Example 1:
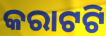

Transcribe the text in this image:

କରାଟଟି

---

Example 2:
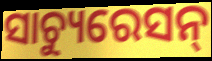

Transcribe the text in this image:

ସାଚ୍ୟୁରେସନ୍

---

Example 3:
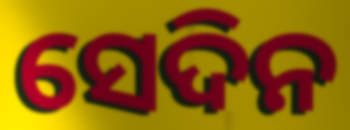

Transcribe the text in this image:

ସେଦିନ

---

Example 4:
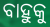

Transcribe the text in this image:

ବାହୁକୁ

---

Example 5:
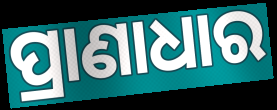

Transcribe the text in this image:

ପ୍ରାଣାଧାର